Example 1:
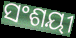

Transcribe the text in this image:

ସଂଶୟୀ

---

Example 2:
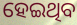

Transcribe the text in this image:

ହେଇଥିବ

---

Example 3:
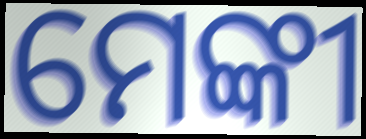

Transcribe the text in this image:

ମେଙ୍କୀ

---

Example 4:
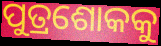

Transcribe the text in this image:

ପୁତ୍ରଶୋକକୁ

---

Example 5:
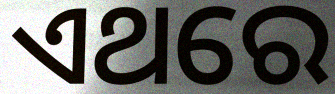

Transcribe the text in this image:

ଏଥରେ